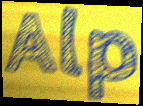
Alp